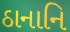
ઠાનાનિ